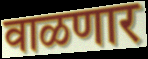
वाळणार